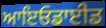
ਆਇਓਡਾਈਡ